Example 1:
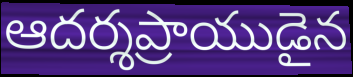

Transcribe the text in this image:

ఆదర్శప్రాయుడైన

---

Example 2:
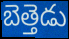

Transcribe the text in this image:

బెత్తెడు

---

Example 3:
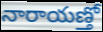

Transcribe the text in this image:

నారాయణ్తో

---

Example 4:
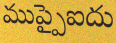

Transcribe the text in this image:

ముప్పైఐదు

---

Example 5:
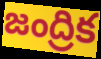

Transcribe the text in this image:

జంద్రిక